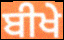
ਬੀਖੇ